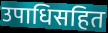
उपाधिसहित